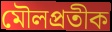
মৌলপ্রতীক